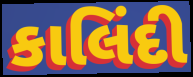
કાલિંદી